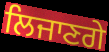
ਲਿਜਾਣਗੇ